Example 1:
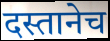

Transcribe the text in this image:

दस्तानेच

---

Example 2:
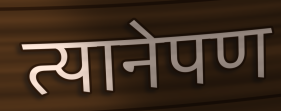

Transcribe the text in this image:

त्यानेपण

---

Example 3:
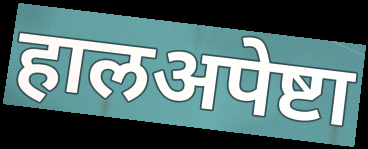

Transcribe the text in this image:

हालअपेष्टा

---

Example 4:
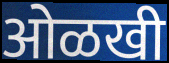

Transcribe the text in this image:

ओळखी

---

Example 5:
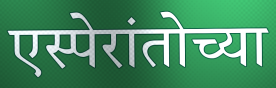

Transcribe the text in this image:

एस्पेरांतोच्या